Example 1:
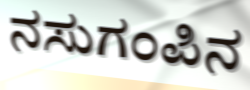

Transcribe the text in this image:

ನಸುಗಂಪಿನ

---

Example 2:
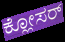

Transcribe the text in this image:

ಕ್ಲೋಸರ್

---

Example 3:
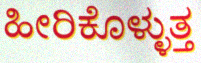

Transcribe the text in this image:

ಹೀರಿಕೊಳ್ಳುತ್ತ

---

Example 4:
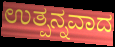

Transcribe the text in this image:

ಉತ್ಪನ್ನವಾದ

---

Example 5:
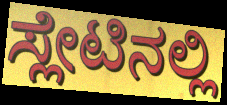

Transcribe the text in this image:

ಸ್ಲೇಟಿನಲ್ಲಿ